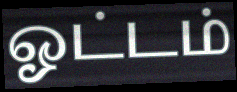
ஓட்டம்